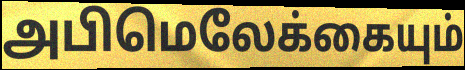
அபிமெலேக்கையும்